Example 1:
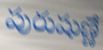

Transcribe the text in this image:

పురుషుణ్ణే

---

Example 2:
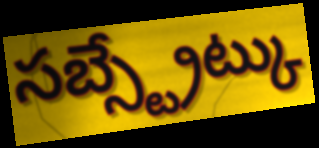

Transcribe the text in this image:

సబ్స్ట్రేట్కు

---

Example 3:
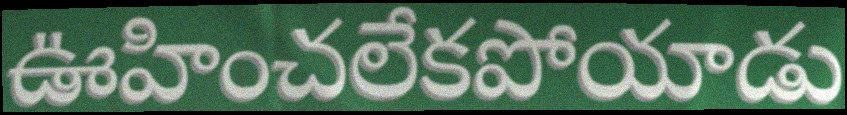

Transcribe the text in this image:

ఊహించలేకపోయాడు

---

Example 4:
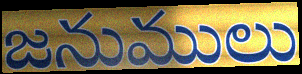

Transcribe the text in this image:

జనుములు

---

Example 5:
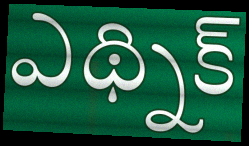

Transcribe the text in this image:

ఎథ్నిక్